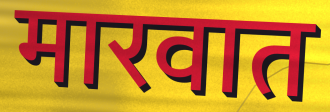
मारवात